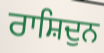
ਰਾਸ਼ਿਦੁਨ